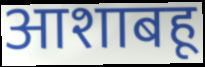
आशाबहू